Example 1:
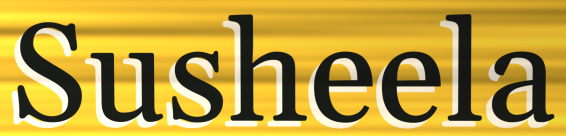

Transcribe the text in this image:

Susheela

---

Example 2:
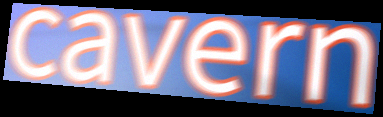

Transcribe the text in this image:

cavern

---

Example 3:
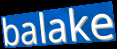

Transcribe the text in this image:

balake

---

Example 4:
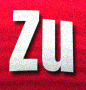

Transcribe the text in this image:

Zu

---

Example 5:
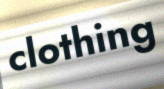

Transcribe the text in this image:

clothing